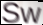
Sw